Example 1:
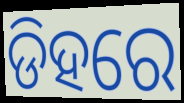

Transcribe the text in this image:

ଡିହରେ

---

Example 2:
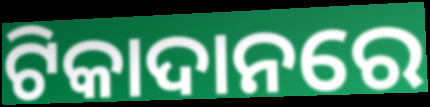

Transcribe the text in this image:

ଟିକାଦାନରେ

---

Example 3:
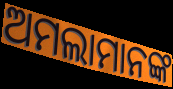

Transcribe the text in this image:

ଅମଲାମାନଙ୍କ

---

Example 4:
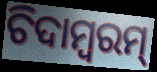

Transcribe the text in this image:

ଚିଦାମ୍ବରମ୍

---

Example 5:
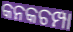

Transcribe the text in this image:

କନକଚମ୍ପା